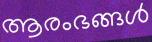
ആരംഭങ്ങൾ